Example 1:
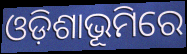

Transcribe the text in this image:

ଓଡ଼ିଶାଭୂମିରେ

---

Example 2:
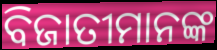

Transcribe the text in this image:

ବିଜାତୀମାନଙ୍କ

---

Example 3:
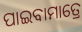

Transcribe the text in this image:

ପାଇବାମାତ୍ରେ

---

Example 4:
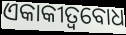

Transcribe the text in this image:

ଏକାକୀତ୍ୱବୋଧ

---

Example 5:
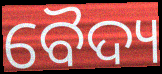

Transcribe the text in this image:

ବୈଦ୍ୟ